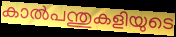
കാൽപന്തുകളിയുടെ